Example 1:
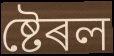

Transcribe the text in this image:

ষ্টেৰল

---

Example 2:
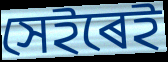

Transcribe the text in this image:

সেইৰেই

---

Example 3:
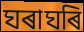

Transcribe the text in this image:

ঘৰাঘৰি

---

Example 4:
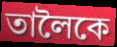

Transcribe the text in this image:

তালৈকে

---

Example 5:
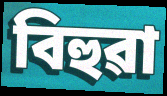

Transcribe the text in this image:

বিহুৱা